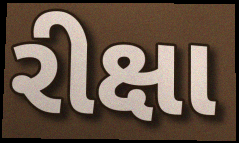
રીક્ષા